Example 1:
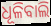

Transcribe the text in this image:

ଧୂଳିବାଲି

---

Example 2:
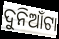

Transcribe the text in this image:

ଦୁନିଆଁଟା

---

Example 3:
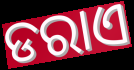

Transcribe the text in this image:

ଡରାଏ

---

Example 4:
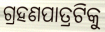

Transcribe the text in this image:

ଗ୍ରହଣପାତ୍ରଟିକୁ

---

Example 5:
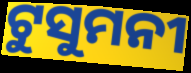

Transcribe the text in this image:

ଟୁସୁମନୀ